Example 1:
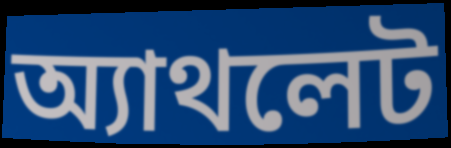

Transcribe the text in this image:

অ্যাথলেট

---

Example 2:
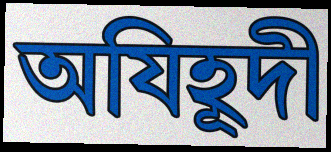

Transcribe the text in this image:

অযিহূদী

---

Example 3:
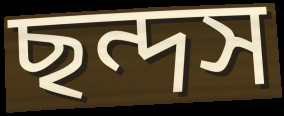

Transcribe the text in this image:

ছন্দস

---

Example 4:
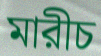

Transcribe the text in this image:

মারীচ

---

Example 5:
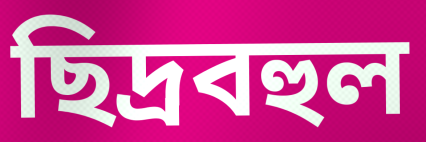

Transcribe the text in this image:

ছিদ্রবহুল